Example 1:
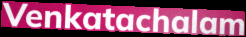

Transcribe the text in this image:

Venkatachalam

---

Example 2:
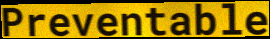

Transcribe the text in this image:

Preventable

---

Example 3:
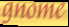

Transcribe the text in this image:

gnome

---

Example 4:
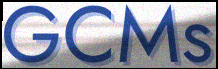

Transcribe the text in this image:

GCMs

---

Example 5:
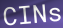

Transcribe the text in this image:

CINs